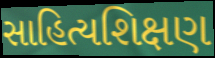
સાહિત્યશિક્ષણ